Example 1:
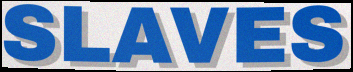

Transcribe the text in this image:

SLAVES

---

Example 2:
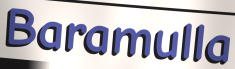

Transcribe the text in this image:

Baramulla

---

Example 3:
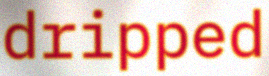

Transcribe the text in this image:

dripped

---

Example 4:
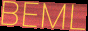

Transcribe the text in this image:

BEML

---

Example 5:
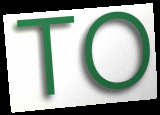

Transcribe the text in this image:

TO